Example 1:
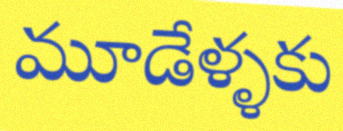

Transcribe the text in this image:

మూడేళ్ళకు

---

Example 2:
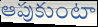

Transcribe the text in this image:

ఆపుకుంటా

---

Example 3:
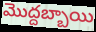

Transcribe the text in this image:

మొద్దబ్బాయి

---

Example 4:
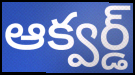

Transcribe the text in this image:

ఆక్వర్డ్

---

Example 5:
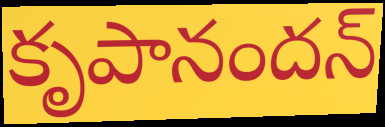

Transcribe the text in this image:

కృపానందన్